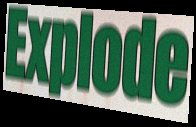
Explode